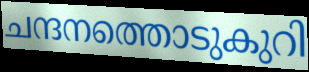
ചന്ദനത്തൊടുകുറി